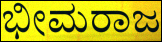
ಭೀಮರಾಜ